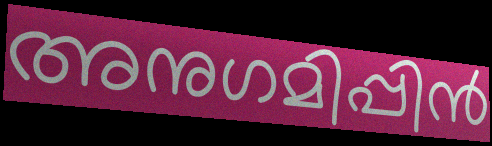
അനുഗമിപ്പിൻ